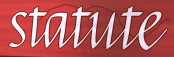
statute